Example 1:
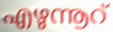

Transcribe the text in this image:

എഴുന്നൂറ്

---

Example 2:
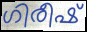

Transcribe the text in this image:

ഗിരീഷ്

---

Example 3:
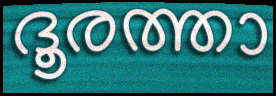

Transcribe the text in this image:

ദൂരത്താ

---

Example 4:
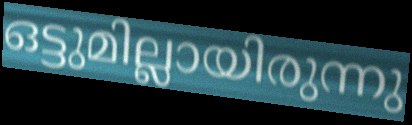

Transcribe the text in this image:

ഒട്ടുമില്ലായിരുന്നു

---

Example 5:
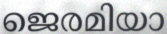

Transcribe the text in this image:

ജെരമിയാ